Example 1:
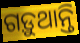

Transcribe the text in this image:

ଗଡ଼ୁଥାନ୍ତି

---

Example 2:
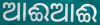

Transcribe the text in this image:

ଆଈଆଈ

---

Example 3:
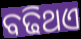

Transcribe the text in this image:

ବଢିଥଏ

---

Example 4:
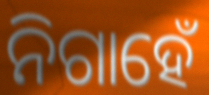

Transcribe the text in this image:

ନିଗାହେଁ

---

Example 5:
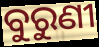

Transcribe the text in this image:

ବୁରୁଣୀ